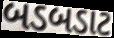
બડબડાટ